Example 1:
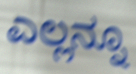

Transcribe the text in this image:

ಎಲ್ಲನ್ನೂ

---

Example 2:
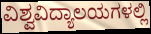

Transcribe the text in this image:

ವಿಶ್ವವಿದ್ಯಾಲಯಗಳಲ್ಲಿ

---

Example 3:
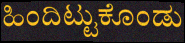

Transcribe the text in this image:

ಹಿಂದಿಟ್ಟುಕೊಂಡು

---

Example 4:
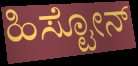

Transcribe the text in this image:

ಹಿಸ್ಟೋನ್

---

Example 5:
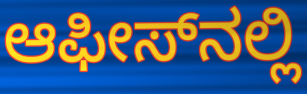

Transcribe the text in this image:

ಆಫೀಸ್‌ನಲ್ಲಿ